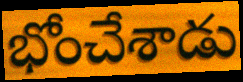
భోంచేశాడు